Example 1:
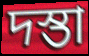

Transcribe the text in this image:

দস্তা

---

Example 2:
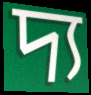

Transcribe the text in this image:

দ্য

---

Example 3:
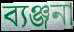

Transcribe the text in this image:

ব্যঞ্জনা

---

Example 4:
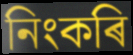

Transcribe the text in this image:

নিংকৰি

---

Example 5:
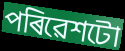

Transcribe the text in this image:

পৰিৱেশটো